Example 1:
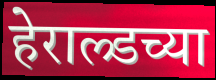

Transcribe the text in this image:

हेराल्डच्या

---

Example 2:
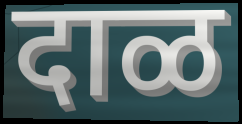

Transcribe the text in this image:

दाळ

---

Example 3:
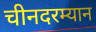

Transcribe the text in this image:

चीनदरम्यान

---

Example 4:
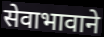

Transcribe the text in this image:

सेवाभावाने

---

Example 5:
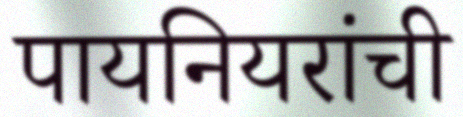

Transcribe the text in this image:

पायनियरांची